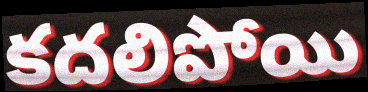
కదలిపోయి